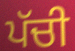
ਪੱਚੀ